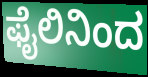
ಫೈಲಿನಿಂದ